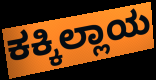
ಕಕ್ಕಿಲ್ಲಾಯ